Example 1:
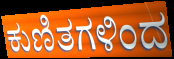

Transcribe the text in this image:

ಕುಣಿತಗಳಿಂದ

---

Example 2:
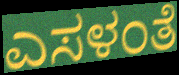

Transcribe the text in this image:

ಎಸಳಂತೆ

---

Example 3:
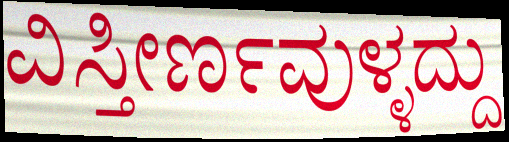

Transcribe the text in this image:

ವಿಸ್ತೀರ್ಣವುಳ್ಳದ್ದು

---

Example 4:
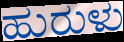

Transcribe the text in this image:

ಹುರುಳು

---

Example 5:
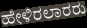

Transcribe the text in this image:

ಹೇಳಿರಲಾರರು